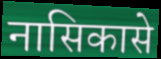
नासिकासे